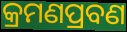
କ୍ରମଣପ୍ରବଣ